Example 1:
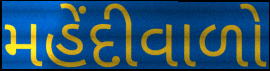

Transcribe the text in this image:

મહેંદીવાળો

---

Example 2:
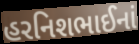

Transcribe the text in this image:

હરનિશભાઈનાં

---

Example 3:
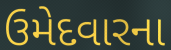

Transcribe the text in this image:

ઉમેદવારના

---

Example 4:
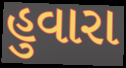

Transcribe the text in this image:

હુવારા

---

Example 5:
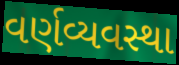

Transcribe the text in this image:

વર્ણવ્યવસ્થા